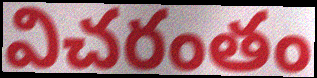
విచరంతం